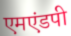
एमएंडपी